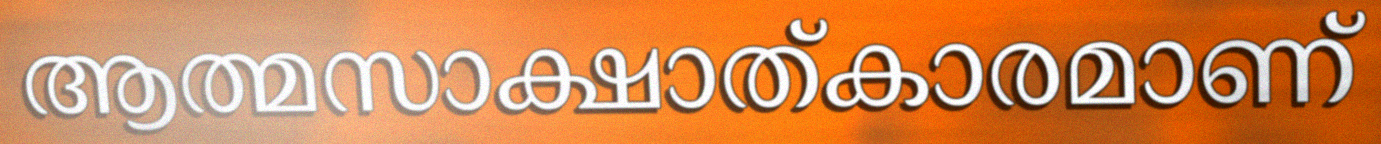
ആത്മസാക്ഷാത്കാരമാണ്